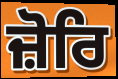
ਜ਼ੋਰਿ